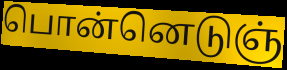
பொன்னெடுஞ்